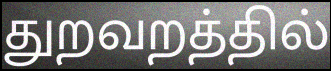
துறவறத்தில்